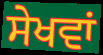
ਸੇਖਵਾਂ